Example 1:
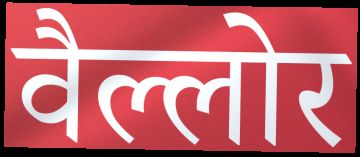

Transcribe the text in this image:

वैल्लोर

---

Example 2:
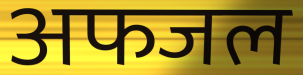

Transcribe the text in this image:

अफजल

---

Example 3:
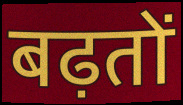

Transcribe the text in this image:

बढ़तों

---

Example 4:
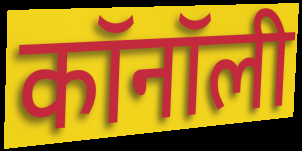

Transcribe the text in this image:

कॉनॉली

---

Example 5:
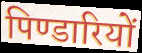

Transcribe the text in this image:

पिण्डारियों